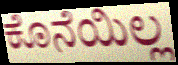
ಕೊನೆಯಿಲ್ಲ